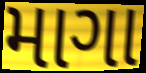
માગા